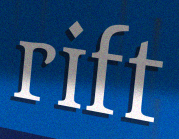
rift